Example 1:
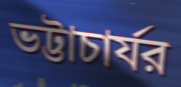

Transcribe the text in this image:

ভট্টাচার্যর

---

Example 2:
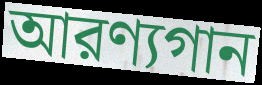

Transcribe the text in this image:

আরণ্যগান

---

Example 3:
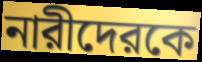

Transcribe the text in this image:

নারীদেরকে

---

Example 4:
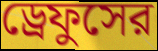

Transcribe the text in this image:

ড্রেফুসের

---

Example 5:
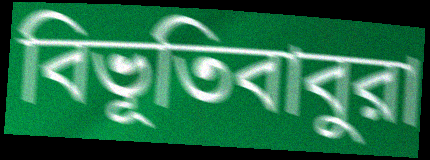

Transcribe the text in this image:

বিভূতিবাবুরা